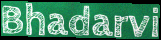
Bhadarvi